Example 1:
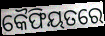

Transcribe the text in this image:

କୈଫିୟତରେ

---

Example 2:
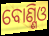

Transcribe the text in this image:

ବୋଣ୍ଣିଓ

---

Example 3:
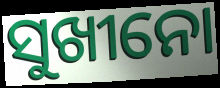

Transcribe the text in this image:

ସୁଖୀନୋ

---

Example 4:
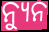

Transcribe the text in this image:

ନ୍ୟୁନ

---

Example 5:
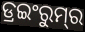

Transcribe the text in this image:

ଡ୍ରଇଂରୁମ୍‌ର